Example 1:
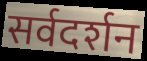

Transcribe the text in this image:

सर्वदर्शन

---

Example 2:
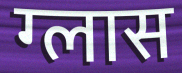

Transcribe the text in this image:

ग्लास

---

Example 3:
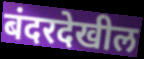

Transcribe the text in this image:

बंदरदेखील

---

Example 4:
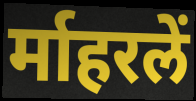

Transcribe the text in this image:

र्माहरलें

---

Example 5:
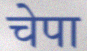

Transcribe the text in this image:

चेपा